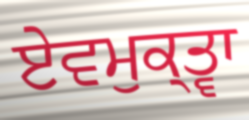
ਏਵਮੁਕ੍ਤ੍ਵਾ